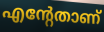
എന്റേതാണ്